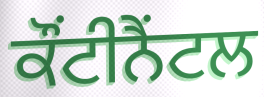
ਕੌਂਟੀਨੈਂਟਲ